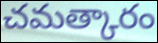
చమత్కారం